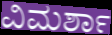
ವಿಮರ್ಶಾ